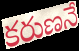
కరుణనే